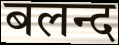
बलन्द